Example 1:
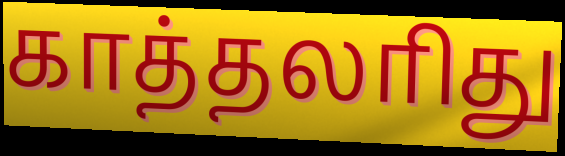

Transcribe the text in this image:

காத்தலரிது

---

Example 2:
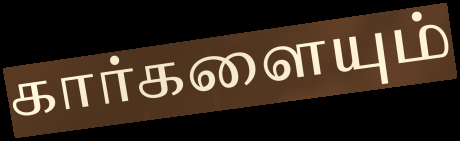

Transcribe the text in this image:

கார்களையும்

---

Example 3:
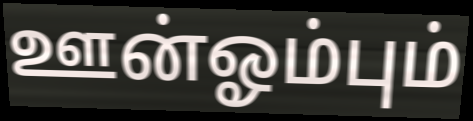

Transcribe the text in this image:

ஊன்ஓம்பும்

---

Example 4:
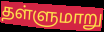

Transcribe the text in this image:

தள்ளுமாறு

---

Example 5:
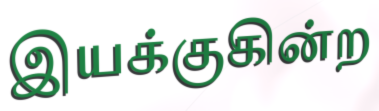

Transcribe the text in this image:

இயக்குகின்ற